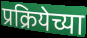
प्रक्रियेच्या